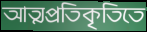
আত্মপ্রতিকৃতিতে